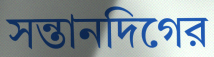
সন্তানদিগের